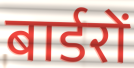
बार्डरों